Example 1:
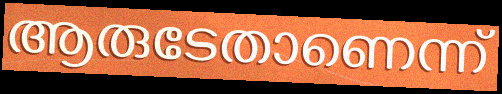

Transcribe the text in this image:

ആരുടേതാണെന്ന്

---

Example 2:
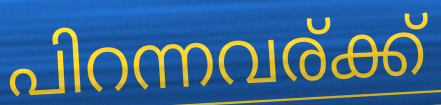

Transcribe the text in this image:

പിറന്നവര്ക്ക്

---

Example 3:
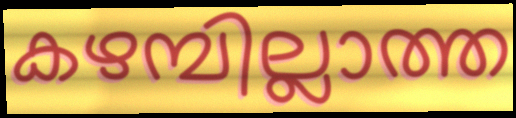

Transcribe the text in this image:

കഴമ്പില്ലാത്ത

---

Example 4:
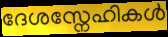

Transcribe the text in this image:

ദേശസ്നേഹികൾ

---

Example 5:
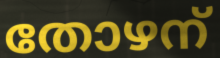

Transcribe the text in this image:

തോഴന്